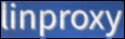
linproxy